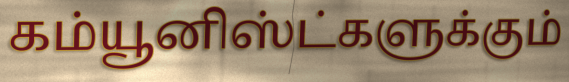
கம்யூனிஸ்ட்களுக்கும்